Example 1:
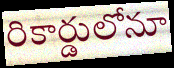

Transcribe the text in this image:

రికార్డులోనూ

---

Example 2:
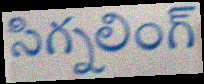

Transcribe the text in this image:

సిగ్నలింగ్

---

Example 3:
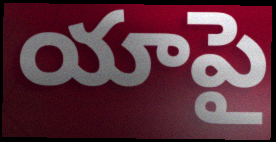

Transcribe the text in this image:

యాపై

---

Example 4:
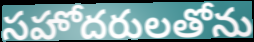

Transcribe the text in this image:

సహోదరులతోను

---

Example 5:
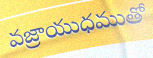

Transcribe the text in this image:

వజ్రాయుధముతో